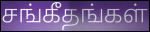
சங்கீதங்கள்